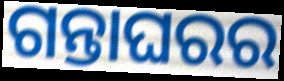
ଗନ୍ତାଘରର